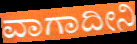
ವಾಗಾದೀನಿ